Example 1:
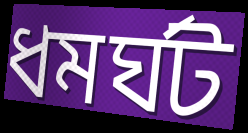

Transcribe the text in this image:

ধমর্ঘট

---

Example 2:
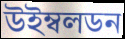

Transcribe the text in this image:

উইম্বলডন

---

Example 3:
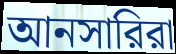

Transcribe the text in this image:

আনসারিরা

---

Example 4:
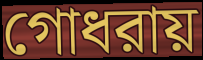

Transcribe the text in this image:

গোধরায়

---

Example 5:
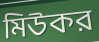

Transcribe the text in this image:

মিউকর